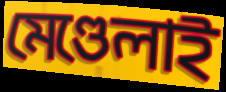
মেণ্ডেলাই